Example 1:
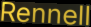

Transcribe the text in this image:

Rennell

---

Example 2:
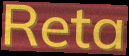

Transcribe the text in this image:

Reta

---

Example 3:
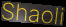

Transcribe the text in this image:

Shaoli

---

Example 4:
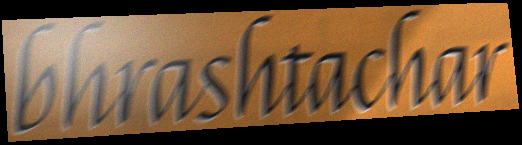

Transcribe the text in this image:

bhrashtachar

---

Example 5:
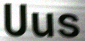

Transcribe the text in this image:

Uus